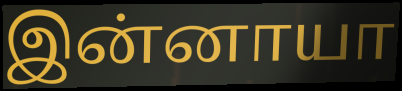
இன்னாயா